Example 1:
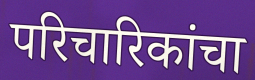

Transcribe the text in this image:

परिचारिकांचा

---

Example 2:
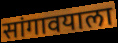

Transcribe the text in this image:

सांगावयाला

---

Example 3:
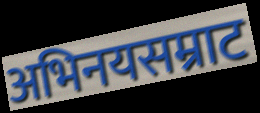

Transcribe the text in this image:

अभिनयसम्राट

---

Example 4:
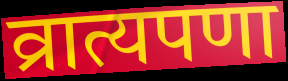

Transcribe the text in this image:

व्रात्यपणा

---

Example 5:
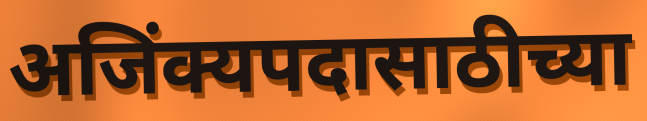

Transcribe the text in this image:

अजिंक्यपदासाठीच्या